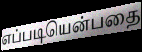
எப்படியென்பதை